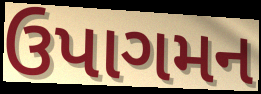
ઉપાગમન